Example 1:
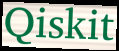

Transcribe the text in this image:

Qiskit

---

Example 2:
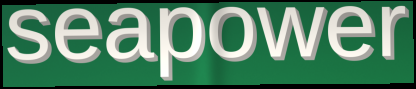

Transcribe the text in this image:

seapower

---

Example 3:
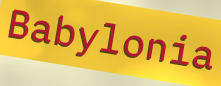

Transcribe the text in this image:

Babylonia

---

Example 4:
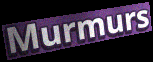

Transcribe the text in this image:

Murmurs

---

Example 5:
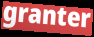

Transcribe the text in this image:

granter